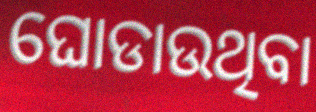
ଘୋଡାଉଥିବା